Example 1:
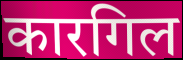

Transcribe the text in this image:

कारगिल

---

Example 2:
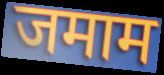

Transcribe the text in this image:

जमाम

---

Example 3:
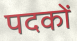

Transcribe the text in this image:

पदकों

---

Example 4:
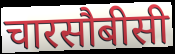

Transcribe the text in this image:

चारसौबीसी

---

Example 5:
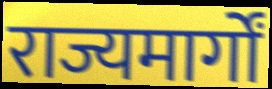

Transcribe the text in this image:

राज्यमार्गों